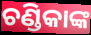
ଚଣ୍ଡିକାଙ୍କ